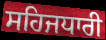
ਸਹਿਜਧਾਰੀ